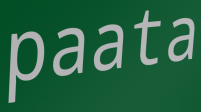
paata